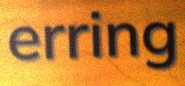
erring